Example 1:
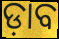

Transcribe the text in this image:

ଡ଼ାବ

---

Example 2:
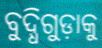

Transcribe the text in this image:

ବୁଦ୍ଧିଗୁଡ଼ାକୁ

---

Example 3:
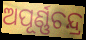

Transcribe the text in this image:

ଅପୂର୍ଣ୍ଣଚନ୍ଦ୍ର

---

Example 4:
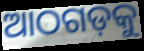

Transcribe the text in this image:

ଆଠଗଡ଼କୁ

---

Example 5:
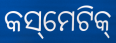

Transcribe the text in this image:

କସ୍‌ମେଟିକ୍